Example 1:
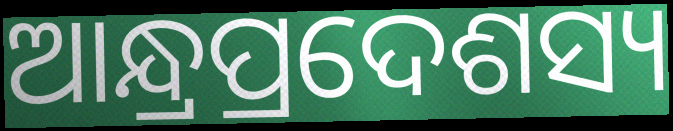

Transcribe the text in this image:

ଆନ୍ଧ୍ରପ୍ରଦେଶସ୍ୟ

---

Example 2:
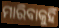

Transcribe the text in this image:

ମାରିବାକୁହିଁ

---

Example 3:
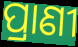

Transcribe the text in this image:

ପ୍ରାଣୀ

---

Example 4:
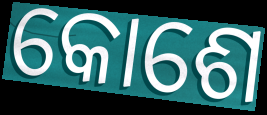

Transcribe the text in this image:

କୋଶେ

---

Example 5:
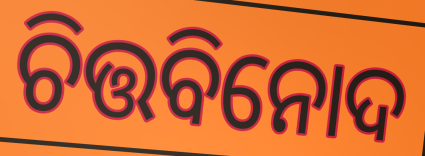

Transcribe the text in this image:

ଚିତ୍ତବିନୋଦ